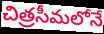
చిత్రసీమలోనే